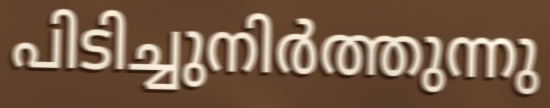
പിടിച്ചുനിർത്തുന്നു